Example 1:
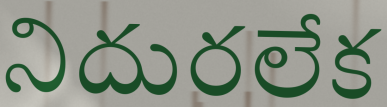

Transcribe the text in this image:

నిదురలేక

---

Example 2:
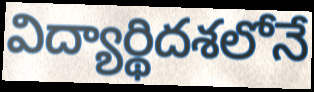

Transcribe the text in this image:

విద్యార్థిదశలోనే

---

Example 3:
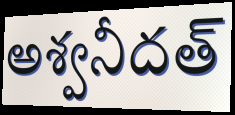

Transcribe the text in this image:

అశ్వనీదత్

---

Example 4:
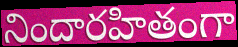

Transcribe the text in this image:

నిందారహితంగా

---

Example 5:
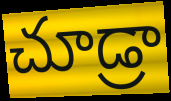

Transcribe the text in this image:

చూడ్రా